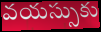
వయస్సుకు